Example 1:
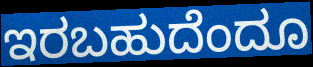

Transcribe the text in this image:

ಇರಬಹುದೆಂದೂ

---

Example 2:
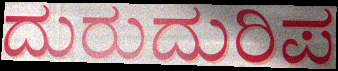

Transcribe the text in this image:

ದುರುದುರಿಪ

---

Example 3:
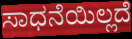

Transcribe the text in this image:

ಸಾಧನೆಯಿಲ್ಲದೆ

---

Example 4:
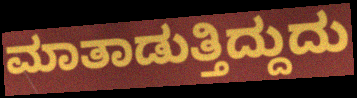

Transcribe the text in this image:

ಮಾತಾಡುತ್ತಿದ್ದುದು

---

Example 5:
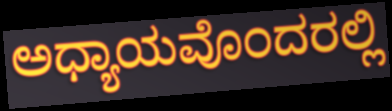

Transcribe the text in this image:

ಅಧ್ಯಾಯವೊಂದರಲ್ಲಿ